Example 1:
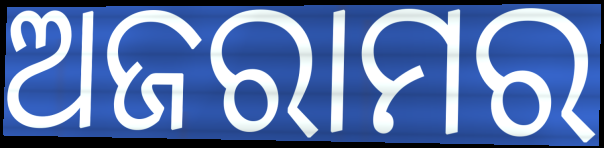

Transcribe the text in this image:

ଅଜରାମର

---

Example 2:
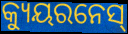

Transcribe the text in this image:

କ୍ୟୁୟରନେସ୍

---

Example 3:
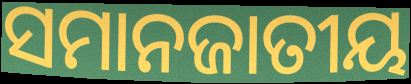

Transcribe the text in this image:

ସମାନଜାତୀୟ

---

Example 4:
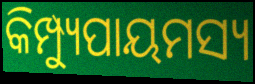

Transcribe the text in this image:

କିମ୍ପ୍ୟୁପାୟମସ୍ୟ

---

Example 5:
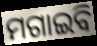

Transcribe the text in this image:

ମଗାଇବି